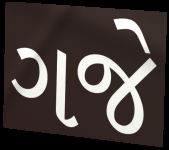
ગજે